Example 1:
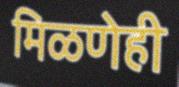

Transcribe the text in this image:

मिळणेही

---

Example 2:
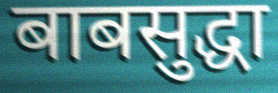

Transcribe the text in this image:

बाबसुद्धा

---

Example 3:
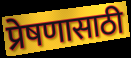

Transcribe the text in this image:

प्रेषणासाठी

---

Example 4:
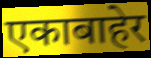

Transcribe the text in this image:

एकाबाहेर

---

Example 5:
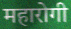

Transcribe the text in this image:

महारोगी